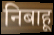
निबाहू